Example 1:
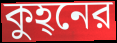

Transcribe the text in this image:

কুহ্‌নের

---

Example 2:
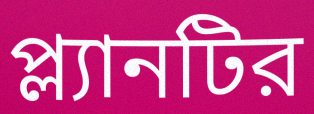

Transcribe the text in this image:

প্ল্যানটির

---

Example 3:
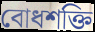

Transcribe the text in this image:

বোধশক্তি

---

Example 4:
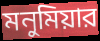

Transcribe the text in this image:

মনুমিয়ার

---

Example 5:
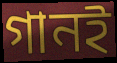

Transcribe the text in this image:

গানই